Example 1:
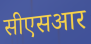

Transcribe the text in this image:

सीएसआर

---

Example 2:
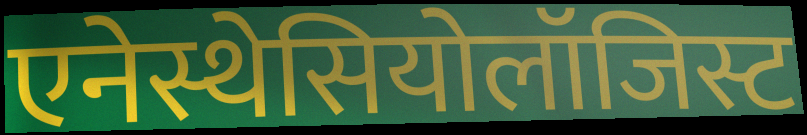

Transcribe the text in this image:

एनेस्थेसियोलॉजिस्ट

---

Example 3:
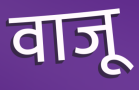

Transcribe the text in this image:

वाजू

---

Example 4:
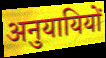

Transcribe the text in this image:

अनुयायियों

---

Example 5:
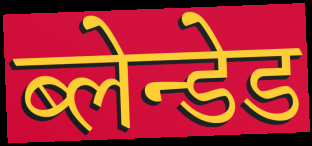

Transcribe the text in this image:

ब्लेन्डेड